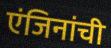
एंजिनांची